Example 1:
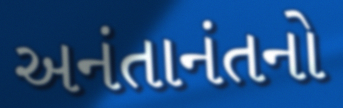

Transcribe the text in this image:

અનંતાનંતનો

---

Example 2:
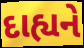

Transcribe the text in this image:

દાહ્યને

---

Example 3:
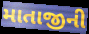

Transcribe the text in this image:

માતાજીની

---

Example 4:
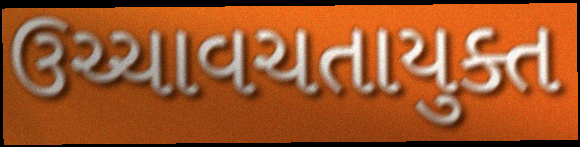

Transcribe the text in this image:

ઉચ્ચાવચતાયુક્ત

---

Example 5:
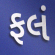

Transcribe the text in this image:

ફલં